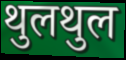
थुलथुल